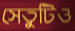
সেতুটিও